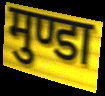
मुण्डा